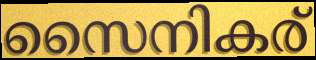
സൈനികര്